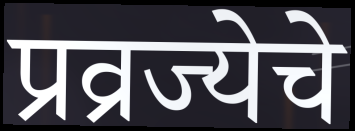
प्रव्रज्येचे